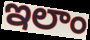
ఇలాం